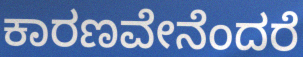
ಕಾರಣವೇನೆಂದರೆ